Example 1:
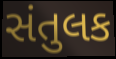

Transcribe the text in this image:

સંતુલક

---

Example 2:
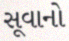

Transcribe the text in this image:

સૂવાનો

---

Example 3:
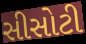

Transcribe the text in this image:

સીસોટી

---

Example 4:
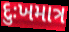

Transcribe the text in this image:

દુઃખમાત્ર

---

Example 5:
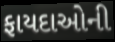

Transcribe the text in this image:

ફાયદાઓની